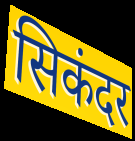
सिकंदर